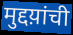
मुद्दय़ांची